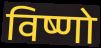
विष्णो